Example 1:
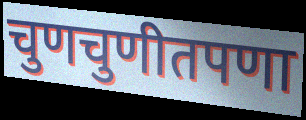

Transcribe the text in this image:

चुणचुणीतपणा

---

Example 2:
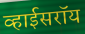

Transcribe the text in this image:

व्हाईसरॉय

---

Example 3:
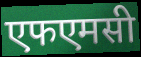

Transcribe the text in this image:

एफएमसी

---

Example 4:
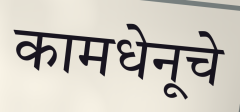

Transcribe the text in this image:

कामधेनूचे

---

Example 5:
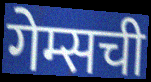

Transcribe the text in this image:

गेम्सची